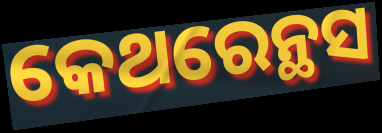
କେଥରେନ୍ଥସ